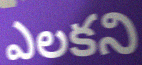
ఎలకని